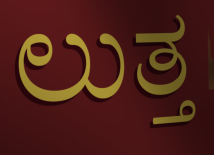
ಲುತ್ತ